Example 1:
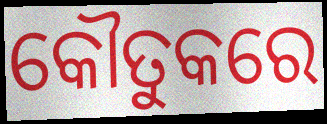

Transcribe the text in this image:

କୌତୁକରେ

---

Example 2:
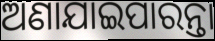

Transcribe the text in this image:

ଅଣାଯାଇପାରନ୍ତା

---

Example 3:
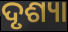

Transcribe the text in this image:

ଦୃଶ୍ୟା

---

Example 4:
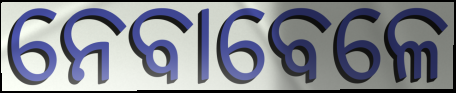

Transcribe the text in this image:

ନେବାବେଳେ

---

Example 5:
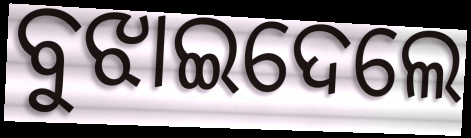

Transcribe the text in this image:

ବୁଝାଇଦେଲେ